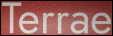
Terrae